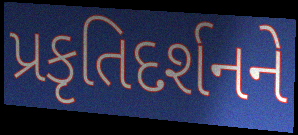
પ્રકૃતિદર્શનને